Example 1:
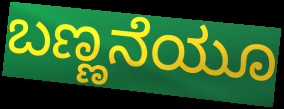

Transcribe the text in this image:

ಬಣ್ಣನೆಯೂ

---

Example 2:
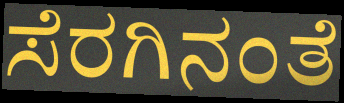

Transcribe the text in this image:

ಸೆರಗಿನಂತೆ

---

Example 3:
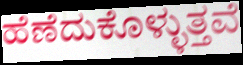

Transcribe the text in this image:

ಹೆಣೆದುಕೊಳ್ಳುತ್ತವೆ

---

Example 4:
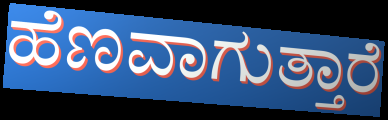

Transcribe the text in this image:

ಹೆಣವಾಗುತ್ತಾರೆ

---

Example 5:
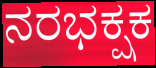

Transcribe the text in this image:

ನರಭಕ್ಷಕ